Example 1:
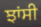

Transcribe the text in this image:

ਝਾਂਸੀ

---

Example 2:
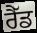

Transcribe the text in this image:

ਰੈੱਡ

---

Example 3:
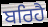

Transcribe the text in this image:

ਬਰਿਹੈ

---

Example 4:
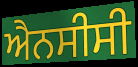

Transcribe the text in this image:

ਐਨਸੀਸੀ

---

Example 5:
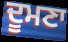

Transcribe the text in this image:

ਦੂਮਣਾ